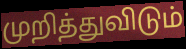
முறித்துவிடும்